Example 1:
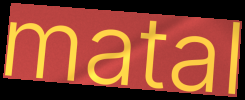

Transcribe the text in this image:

matal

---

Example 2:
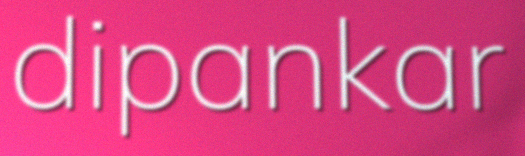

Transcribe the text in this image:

dipankar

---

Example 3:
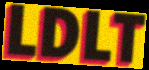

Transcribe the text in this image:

LDLT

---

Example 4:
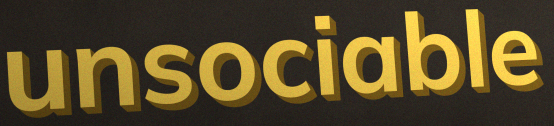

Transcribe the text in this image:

unsociable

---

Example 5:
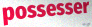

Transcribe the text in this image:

possesser